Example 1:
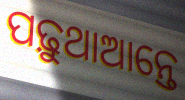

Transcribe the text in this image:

ପଢ଼ୁଥାଆନ୍ତେ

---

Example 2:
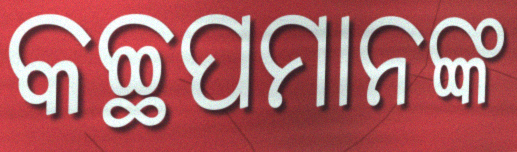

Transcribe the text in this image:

କଚ୍ଛପମାନଙ୍କ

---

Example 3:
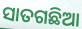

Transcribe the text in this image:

ସାତଗଛିଆ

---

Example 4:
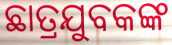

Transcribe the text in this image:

ଛାତ୍ରଯୁବକଙ୍କ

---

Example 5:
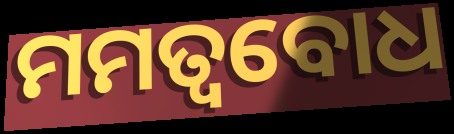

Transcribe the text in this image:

ମମତ୍ବବୋଧ